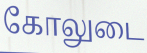
கோலுடை